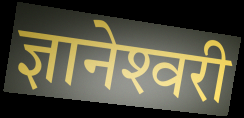
ज्ञानेश्‍वरी